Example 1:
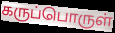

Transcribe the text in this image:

கருப்பொருள்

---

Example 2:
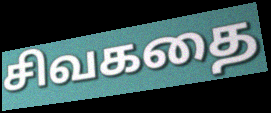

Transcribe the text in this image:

சிவகதை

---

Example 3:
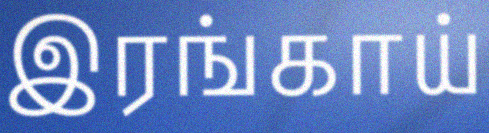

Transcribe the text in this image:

இரங்காய்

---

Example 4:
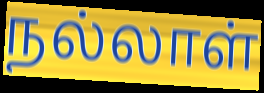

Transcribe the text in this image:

நல்லாள்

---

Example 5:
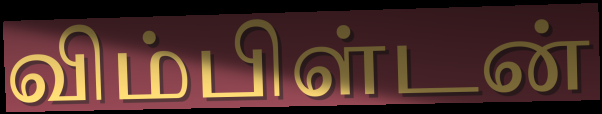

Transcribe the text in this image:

விம்பிள்டன்